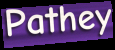
Pathey